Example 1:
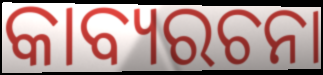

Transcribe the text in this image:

କାବ୍ୟରଚନା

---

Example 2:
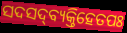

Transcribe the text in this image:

ସଦସଦ୍‌ବ୍ୟକ୍ତିହେତପଃ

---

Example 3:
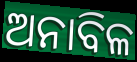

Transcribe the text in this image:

ଅନାବିଳ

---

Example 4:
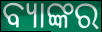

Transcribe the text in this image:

ବ୍ୟାଙ୍କର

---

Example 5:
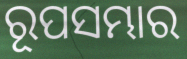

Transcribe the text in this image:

ରୂପସମ୍ଭାର